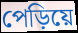
পেড়িয়ে